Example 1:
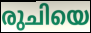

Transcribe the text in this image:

രുചിയെ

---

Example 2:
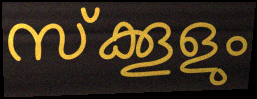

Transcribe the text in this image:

സ്ക്കൂളും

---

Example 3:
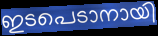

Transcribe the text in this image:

ഇടപെടാനായി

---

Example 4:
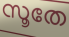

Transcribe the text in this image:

സൂതേ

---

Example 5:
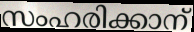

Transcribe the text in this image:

സംഹരിക്കാന്